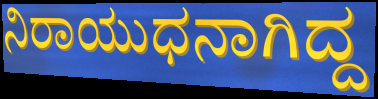
ನಿರಾಯುಧನಾಗಿದ್ದ